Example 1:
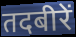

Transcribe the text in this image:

तदबीरें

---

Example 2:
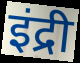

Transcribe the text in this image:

इंद्री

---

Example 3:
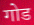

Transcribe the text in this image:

गोड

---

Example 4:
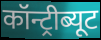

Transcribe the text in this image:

कॉन्ट्रीब्यूट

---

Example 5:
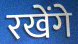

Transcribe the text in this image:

रखेंगे